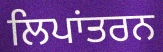
ਲਿਪਾਂਤਰਨ